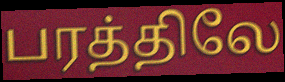
பரத்திலே